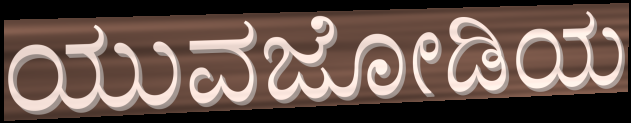
ಯುವಜೋಡಿಯ